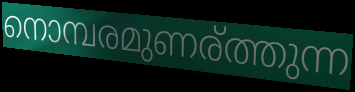
നൊമ്പരമുണര്ത്തുന്ന